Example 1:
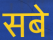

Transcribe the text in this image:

सबे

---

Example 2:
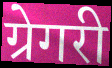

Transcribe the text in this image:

ग्रेगरी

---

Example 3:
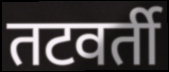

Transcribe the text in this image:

तटवर्ती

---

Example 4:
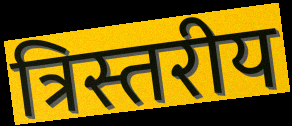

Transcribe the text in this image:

त्रिस्तरीय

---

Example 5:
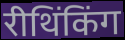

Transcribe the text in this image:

रीथिंकिंग